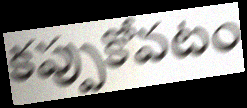
కప్పుకోవటం